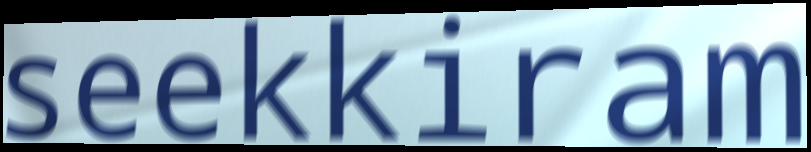
seekkiram